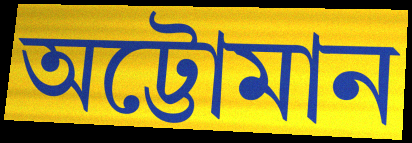
অট্টোমান